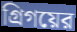
গ্রিগয়ের